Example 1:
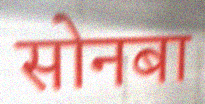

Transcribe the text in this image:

सोनबा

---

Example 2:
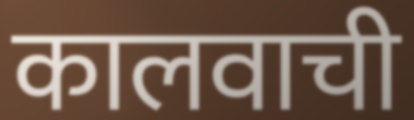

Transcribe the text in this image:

कालवाची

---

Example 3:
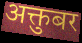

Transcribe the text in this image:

अक्तुबर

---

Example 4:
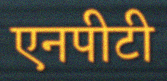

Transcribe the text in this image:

एनपीटी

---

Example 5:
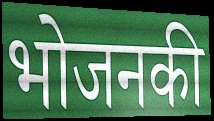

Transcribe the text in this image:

भोजनकी